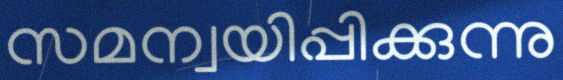
സമന്വയിപ്പിക്കുന്നു